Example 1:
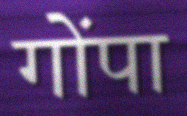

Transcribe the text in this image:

गोंपा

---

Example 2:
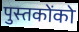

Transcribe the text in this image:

पुस्तकोंको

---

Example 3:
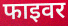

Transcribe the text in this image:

फाइवर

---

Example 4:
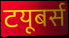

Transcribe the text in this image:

टयूबर्स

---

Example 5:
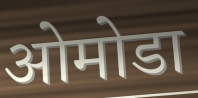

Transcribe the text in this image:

ओमोडा